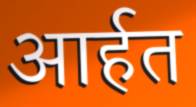
आर्हत